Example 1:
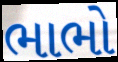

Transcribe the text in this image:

ભાભો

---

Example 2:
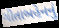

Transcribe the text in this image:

ગીતાબહેનનું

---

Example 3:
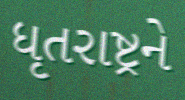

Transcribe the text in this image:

ધૃતરાષ્ટ્રને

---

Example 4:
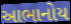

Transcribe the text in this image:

આભાનોય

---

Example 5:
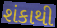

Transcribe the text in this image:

શંકાથી